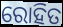
ରୋହିତ